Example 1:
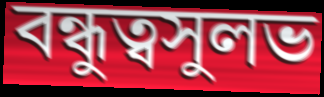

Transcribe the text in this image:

বন্ধুত্বসুলভ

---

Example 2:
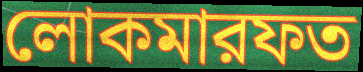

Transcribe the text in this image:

লোকমারফত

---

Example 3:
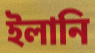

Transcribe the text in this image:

ইলানি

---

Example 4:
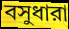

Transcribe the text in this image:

বসুধারা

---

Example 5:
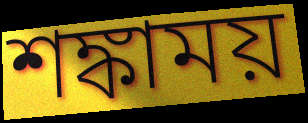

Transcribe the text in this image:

শঙ্কাময়